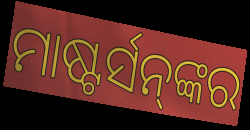
ମାଷ୍ଟର୍ସନ୍‌ଙ୍କର